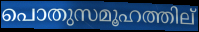
പൊതുസമൂഹത്തില്